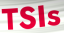
TSIs